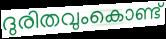
ദുരിതവുംകൊണ്ട്